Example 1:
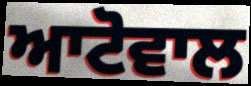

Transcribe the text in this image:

ਆਟੋਵਾਲ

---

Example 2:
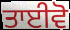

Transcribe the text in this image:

ਤਾਈਵੋ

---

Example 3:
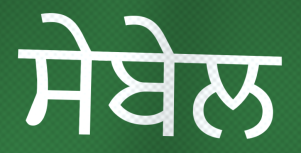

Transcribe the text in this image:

ਸੇਬੇਲ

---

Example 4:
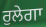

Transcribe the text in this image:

ਰੁਲੇਗਾ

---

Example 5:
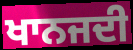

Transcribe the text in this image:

ਖਾਨਜਦੀ